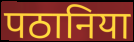
पठानिया